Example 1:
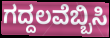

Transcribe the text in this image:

ಗದ್ದಲವೆಬ್ಬಿಸಿ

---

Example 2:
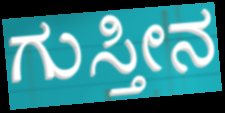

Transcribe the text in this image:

ಗುಸ್ತೀನ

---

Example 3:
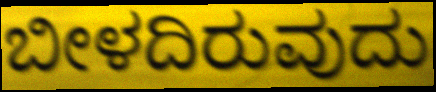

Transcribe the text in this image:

ಬೀಳದಿರುವುದು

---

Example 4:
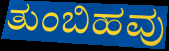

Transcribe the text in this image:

ತುಂಬಿಹವು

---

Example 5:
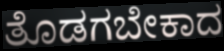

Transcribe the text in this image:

ತೊಡಗಬೇಕಾದ